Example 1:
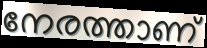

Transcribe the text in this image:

നേരത്താണ്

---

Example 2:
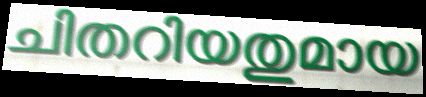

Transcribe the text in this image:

ചിതറിയതുമായ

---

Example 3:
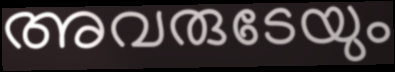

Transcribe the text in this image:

അവരുടേയും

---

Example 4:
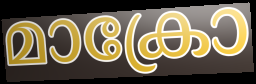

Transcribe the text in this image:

മാക്രോ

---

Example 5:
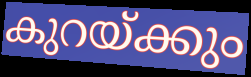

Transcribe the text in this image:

കുറയ്ക്കും